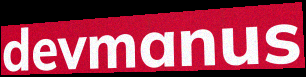
devmanus